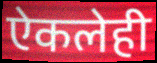
ऐकलेही